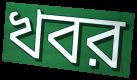
খবর